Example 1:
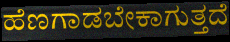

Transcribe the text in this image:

ಹೆಣಗಾಡಬೇಕಾಗುತ್ತದೆ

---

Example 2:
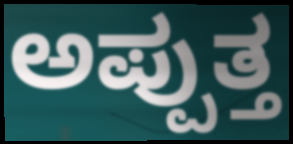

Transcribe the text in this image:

ಅಪ್ಪುತ್ತ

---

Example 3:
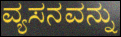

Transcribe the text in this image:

ವ್ಯಸನವನ್ನು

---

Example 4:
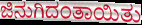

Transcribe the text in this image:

ಜಿನುಗಿದಂತಾಯಿತು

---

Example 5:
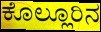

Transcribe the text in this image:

ಕೊಲ್ಲೂರಿನ